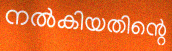
നൽകിയതിന്റെ